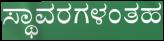
ಸ್ಥಾವರಗಳಂತಹ